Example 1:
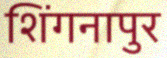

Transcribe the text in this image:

शिंगनापुर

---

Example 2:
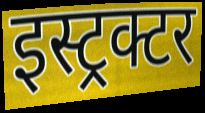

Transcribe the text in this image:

इस्ट्रक्टर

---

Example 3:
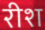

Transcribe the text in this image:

रीश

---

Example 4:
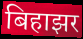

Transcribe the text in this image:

बिहाझर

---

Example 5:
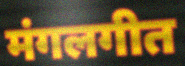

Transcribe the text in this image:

मंगलगीत